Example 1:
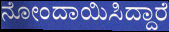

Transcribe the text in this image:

ನೋಂದಾಯಿಸಿದ್ದಾರೆ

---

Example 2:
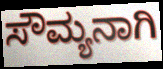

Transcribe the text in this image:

ಸೌಮ್ಯನಾಗಿ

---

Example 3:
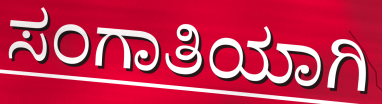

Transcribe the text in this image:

ಸಂಗಾತಿಯಾಗಿ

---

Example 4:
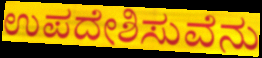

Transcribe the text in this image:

ಉಪದೇಶಿಸುವೆನು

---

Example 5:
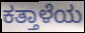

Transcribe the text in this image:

ಕತ್ತಾಳೆಯ